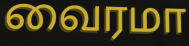
வைரமா